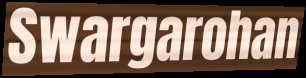
Swargarohan